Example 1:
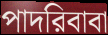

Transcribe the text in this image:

পাদরিবাবা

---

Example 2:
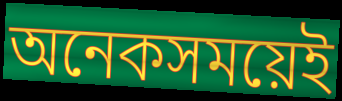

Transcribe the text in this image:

অনেকসময়েই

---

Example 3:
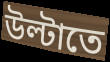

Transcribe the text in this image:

উল্টাতে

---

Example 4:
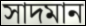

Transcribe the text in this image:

সাদমান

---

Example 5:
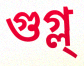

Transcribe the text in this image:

গুগ্ল্